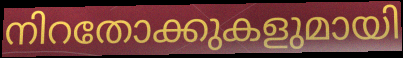
നിറതോക്കുകളുമായി